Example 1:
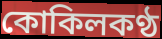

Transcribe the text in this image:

কোকিলকণ্ঠ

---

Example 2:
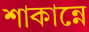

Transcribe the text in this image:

শাকান্নে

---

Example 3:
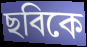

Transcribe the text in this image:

ছবিকে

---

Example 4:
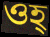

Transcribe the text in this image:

ওহ্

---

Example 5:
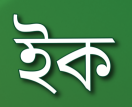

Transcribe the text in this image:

ইক